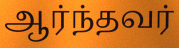
ஆர்ந்தவர்